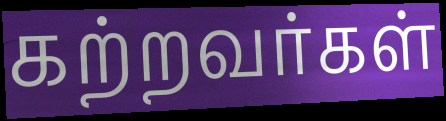
கற்றவர்கள்